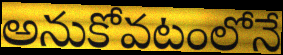
అనుకోవటంలోనే